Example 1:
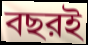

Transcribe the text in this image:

বছরই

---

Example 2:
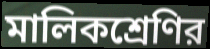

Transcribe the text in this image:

মালিকশ্রেণির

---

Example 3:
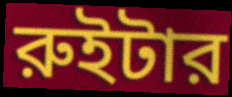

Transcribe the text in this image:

রুইটার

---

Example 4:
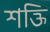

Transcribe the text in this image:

শক্তি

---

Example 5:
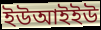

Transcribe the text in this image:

ইউআইইউ